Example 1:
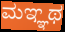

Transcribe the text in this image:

ಮಞ್ಞಥ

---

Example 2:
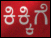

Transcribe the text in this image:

ಕಿಕ್ಕಿಗೆ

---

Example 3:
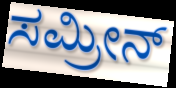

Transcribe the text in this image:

ಸಮ್ರೀನ್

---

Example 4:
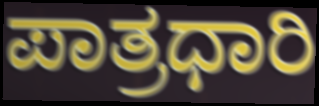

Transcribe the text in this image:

ಪಾತ್ರಧಾರಿ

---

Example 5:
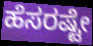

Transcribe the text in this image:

ಹೆಸರಷ್ಟೇ